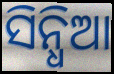
ସିନ୍ଧିଆ